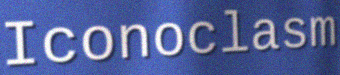
Iconoclasm